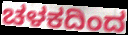
ಚಳಕದಿಂದ